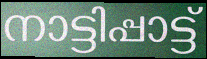
നാട്ടിപ്പാട്ട്